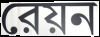
রেয়ন